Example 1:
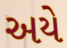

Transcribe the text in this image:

અયે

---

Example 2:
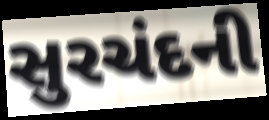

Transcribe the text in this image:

સુરચંદની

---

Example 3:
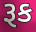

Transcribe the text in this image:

રૂક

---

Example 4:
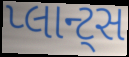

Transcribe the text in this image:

પ્લાન્ટ્સ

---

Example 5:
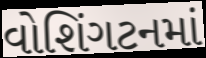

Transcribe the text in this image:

વોશિંગટનમાં